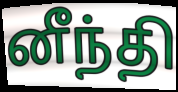
னீந்தி